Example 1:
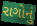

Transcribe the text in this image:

રાગોનું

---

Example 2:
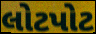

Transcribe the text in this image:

લોટપોટ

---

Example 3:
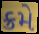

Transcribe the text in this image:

ક્રમે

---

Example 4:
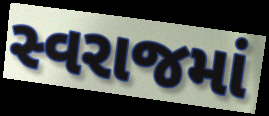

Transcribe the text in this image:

સ્વરાજમાં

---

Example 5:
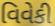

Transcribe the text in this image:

વિવેકી